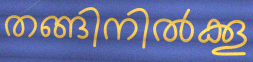
തങ്ങിനിൽക്കൂ